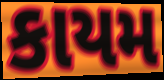
કાયમ